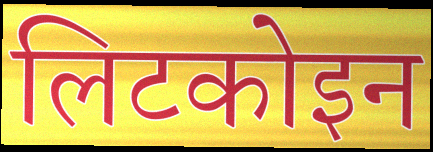
लिटकोइन